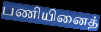
பணியினைத்